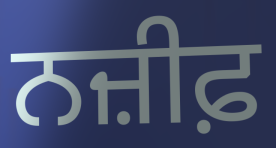
ਨਜ਼ੀਫ਼